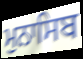
ਮੁਨਾਸਿਬ